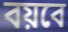
বয়বে